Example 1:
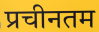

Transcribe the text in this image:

प्रचीनतम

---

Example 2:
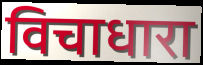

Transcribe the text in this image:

विचाधारा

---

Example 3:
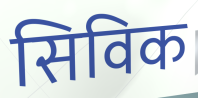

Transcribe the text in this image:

सिविक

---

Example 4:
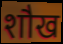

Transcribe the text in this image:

शौख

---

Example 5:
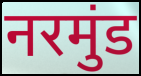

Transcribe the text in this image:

नरमुंड